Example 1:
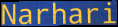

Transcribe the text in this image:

Narhari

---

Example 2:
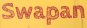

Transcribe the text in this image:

Swapan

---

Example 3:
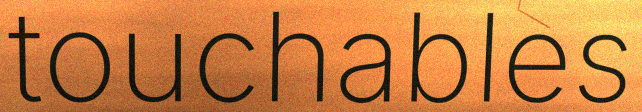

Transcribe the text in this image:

touchables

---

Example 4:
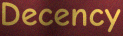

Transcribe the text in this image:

Decency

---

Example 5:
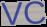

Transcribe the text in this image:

VC